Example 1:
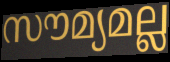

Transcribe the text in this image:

സൗമ്യമല്ല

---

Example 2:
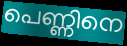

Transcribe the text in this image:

പെണ്ണിനെ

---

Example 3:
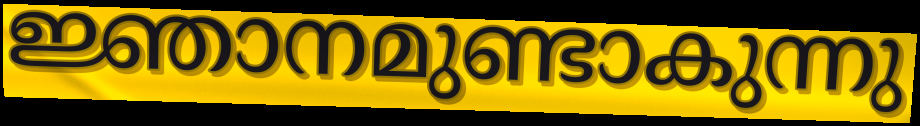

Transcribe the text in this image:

ജ്ഞാനമുണ്ടാകുന്നു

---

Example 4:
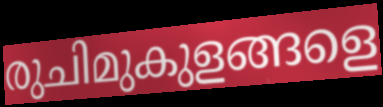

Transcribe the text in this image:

രുചിമുകുളങ്ങളെ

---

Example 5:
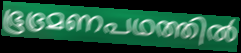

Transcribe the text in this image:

ഭൂഭ്രമണപഥത്തിൽ